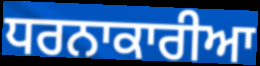
ਧਰਨਾਕਾਰੀਆ